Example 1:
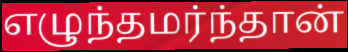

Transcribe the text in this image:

எழுந்தமர்ந்தான்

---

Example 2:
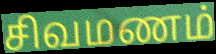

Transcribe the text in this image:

சிவமணம்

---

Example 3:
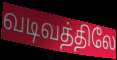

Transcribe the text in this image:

வடிவத்திலே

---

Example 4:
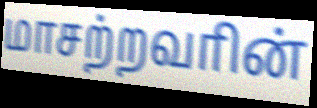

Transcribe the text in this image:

மாசற்றவரின்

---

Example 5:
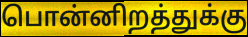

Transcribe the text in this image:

பொன்னிறத்துக்கு